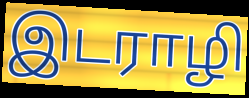
இடராழி